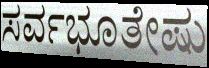
ಸರ್ವಭೂತೇಷು